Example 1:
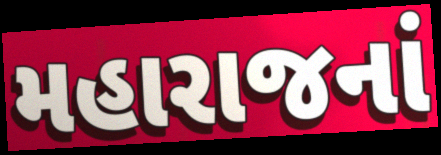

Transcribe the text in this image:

મહારાજનાં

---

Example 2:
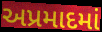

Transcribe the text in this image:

અપ્રમાદમાં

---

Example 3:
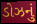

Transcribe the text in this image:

ડોઝનું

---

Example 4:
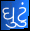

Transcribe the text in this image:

ઘુટું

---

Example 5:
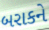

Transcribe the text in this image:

બરાકને